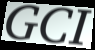
GCI